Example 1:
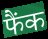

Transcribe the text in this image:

फैंक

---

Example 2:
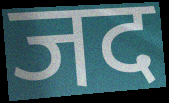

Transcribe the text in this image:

जद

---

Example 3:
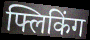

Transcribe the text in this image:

फ्लिकिंग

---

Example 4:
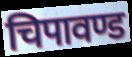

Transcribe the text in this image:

चिपावण्ड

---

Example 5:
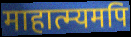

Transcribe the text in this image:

माहात्म्यमपि